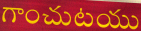
గాంచుటయు